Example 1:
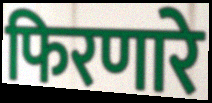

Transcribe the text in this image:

फिरणारे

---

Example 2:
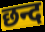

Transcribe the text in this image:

छन्द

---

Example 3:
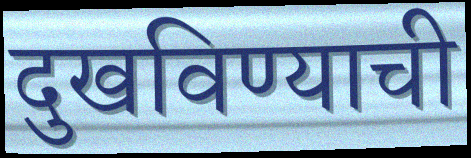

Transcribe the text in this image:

दुखविण्याची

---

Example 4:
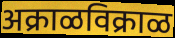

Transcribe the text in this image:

अक्राळविक्राळ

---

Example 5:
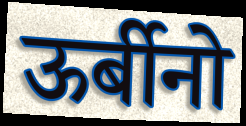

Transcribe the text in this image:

ऊर्बीनो